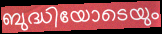
ബുദ്ധിയോടെയും